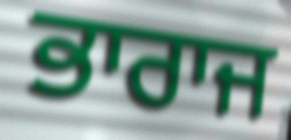
ਭਾਰਾਜ